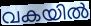
വകയിൽ